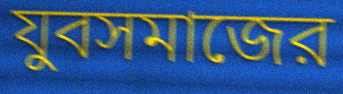
যুবসমাজের